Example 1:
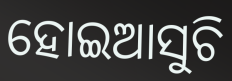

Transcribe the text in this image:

ହୋଇଆସୁଚି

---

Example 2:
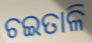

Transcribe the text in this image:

ଚଇତାଳି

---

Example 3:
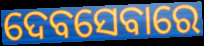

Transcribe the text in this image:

ଦେବସେବାରେ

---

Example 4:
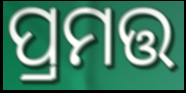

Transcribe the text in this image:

ପ୍ରମତ୍ତ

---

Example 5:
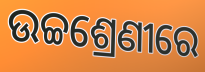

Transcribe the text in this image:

ଉଚ୍ଚଶ୍ରେଣୀରେ